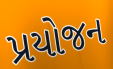
પ્રયોજન